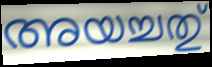
അയച്ചതു്